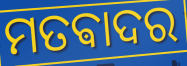
ମତଵାଦର